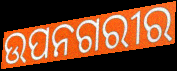
ଉପନଗରୀର